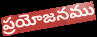
ప్రయోజనము